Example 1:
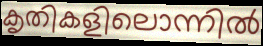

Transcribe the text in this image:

കൃതികളിലൊന്നിൽ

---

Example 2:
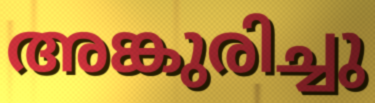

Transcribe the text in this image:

അങ്കുരിച്ചു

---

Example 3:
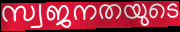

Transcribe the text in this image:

സ്വജനതയുടെ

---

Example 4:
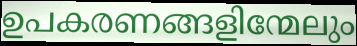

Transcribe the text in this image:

ഉപകരണങ്ങളിന്മേലും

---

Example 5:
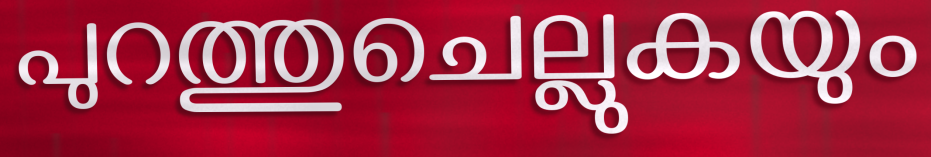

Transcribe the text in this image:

പുറത്തുചെല്ലുകയും